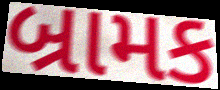
બ્રામક